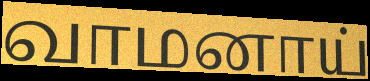
வாமனாய்